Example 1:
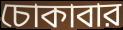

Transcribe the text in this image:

চোকাবার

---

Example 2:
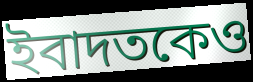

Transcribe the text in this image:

ইবাদতকেও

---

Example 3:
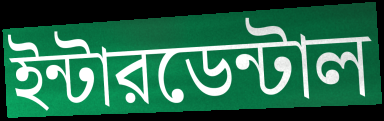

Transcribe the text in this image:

ইন্টারডেন্টাল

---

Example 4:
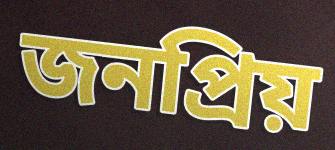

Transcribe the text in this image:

জনপ্রিয়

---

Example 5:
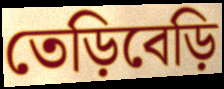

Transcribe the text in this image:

তেড়িবেড়ি